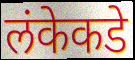
लंकेकडे